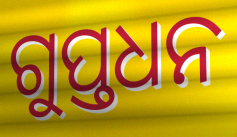
ଗୁପ୍ତଧନ